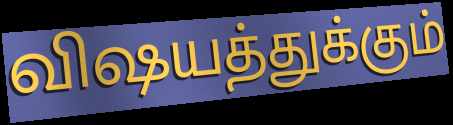
விஷயத்துக்கும்